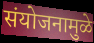
संयोजनामुळे